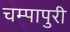
चम्पापुरी